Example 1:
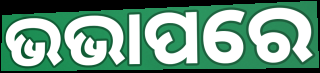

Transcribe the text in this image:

ଭଭାପରେ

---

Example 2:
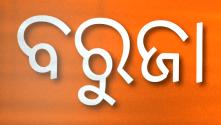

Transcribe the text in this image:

ବରୁଜା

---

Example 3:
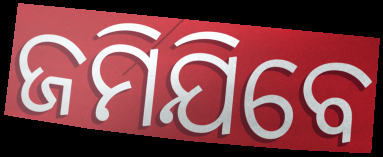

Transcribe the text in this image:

ଜମିଯିବେ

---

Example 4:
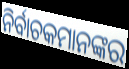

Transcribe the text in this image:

ନିର୍ବାଚକମାନଙ୍କର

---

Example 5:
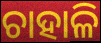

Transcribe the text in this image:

ଚାହାଳି